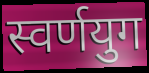
स्वर्णयुग